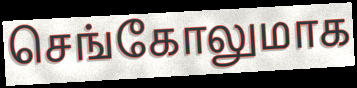
செங்கோலுமாக